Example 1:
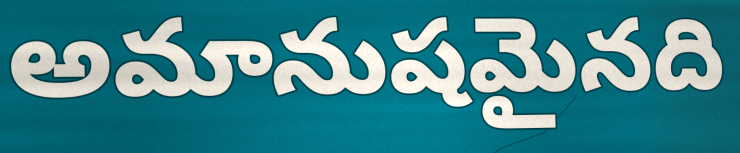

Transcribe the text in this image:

అమానుషమైనది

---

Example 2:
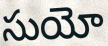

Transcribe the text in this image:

సుయో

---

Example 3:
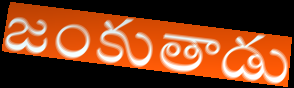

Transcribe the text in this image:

జంకుతాడు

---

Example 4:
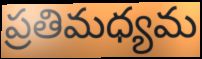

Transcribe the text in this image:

ప్రతిమధ్యమ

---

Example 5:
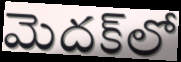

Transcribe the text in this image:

మెదక్‌లో